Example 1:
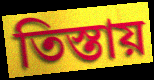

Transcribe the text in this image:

তিস্তায়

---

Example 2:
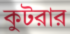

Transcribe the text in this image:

কুটরার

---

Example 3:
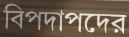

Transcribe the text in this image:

বিপদাপদের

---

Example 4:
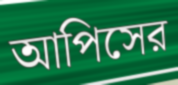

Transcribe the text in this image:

আপিসের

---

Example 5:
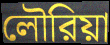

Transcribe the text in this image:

লৌরিয়া